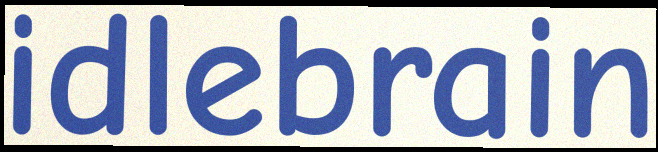
idlebrain